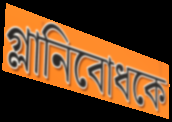
গ্লানিবোধকে